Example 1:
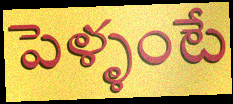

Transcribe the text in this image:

పెళ్ళంటే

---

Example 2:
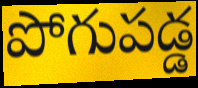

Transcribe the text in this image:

పోగుపడ్డ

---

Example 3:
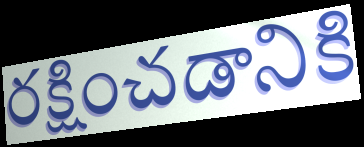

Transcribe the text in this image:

రక్షించడానికి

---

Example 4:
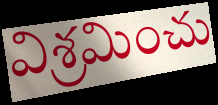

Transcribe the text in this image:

విశ్రమించు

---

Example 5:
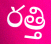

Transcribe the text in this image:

రత్తి